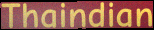
Thaindian